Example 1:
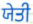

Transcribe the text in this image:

ਯੇਤੀ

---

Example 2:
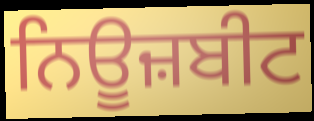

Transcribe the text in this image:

ਨਿਊਜ਼ਬੀਟ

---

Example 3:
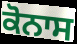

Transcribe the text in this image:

ਕੋਨਾਸ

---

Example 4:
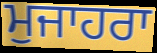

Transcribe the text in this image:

ਮੁਜਾਹਰਾ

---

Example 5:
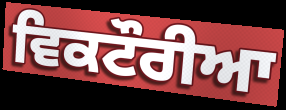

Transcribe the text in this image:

ਵਿਕਟੌਰੀਆ